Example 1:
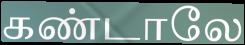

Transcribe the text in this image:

கண்டாலே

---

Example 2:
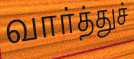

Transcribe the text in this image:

வார்த்துச்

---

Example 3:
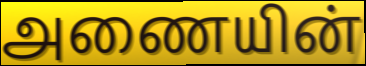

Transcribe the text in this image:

அணையின்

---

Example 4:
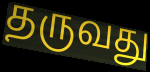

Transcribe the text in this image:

தருவது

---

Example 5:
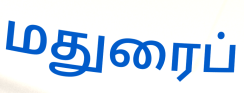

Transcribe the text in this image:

மதுரைப்